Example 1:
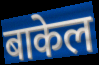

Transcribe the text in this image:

बाकेल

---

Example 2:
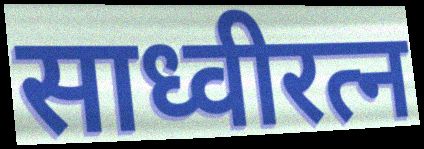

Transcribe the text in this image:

साध्वीरत्न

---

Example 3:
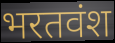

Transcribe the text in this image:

भरतवंश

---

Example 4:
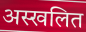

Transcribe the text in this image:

अस्खलित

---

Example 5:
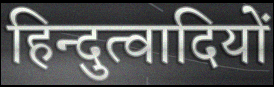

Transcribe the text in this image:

हिन्दुत्वादियों